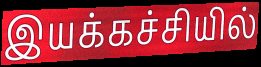
இயக்கச்சியில்